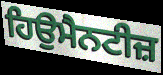
ਹਿਉਮੈਨਟੀਜ਼